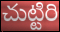
చుట్టిరి